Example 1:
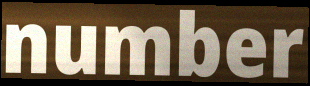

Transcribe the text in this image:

number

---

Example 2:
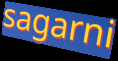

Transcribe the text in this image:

sagarni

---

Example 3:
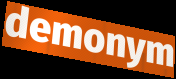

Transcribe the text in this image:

demonym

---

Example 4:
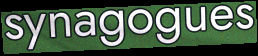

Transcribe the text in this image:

synagogues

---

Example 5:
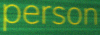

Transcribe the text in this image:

person